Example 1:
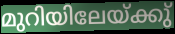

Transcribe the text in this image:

മുറിയിലേയ്ക്കു്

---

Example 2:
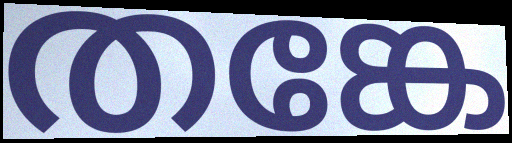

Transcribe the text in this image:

തങ്കേ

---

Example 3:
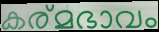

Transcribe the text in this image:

കര്മഭാവം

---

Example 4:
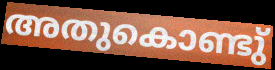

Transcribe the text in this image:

അതുകൊണ്ടു്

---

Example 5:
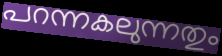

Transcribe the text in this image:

പറന്നകലുന്നതും